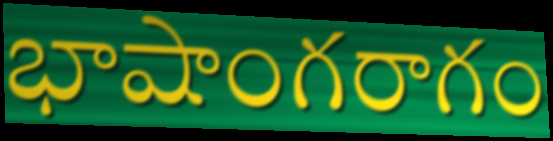
భాషాంగరాగం